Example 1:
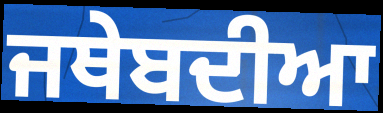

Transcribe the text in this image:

ਜਥੇਬਦੀਆ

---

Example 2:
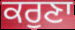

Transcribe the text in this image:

ਕਰੁਣਾ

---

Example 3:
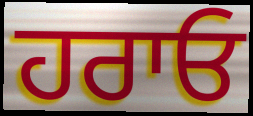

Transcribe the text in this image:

ਹਰਾਓ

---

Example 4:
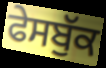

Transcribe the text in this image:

ਫੇਸਬੁੱਕ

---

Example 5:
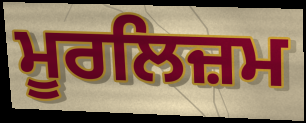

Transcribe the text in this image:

ਮੂਰਲਿਜ਼ਮ